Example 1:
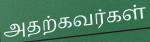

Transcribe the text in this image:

அதற்கவர்கள்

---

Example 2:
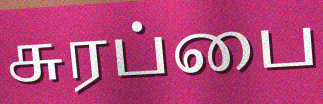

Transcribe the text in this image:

சுரப்பை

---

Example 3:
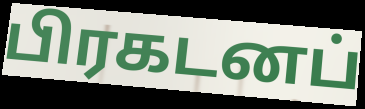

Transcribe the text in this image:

பிரகடனப்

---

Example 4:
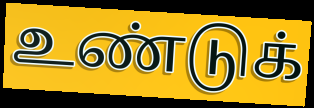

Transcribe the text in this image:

உண்டுக்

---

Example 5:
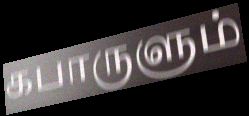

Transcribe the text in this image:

கபாருளும்